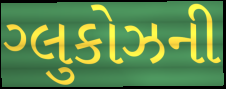
ગ્લુકોઝની